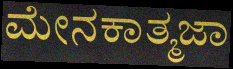
ಮೇನಕಾತ್ಮಜಾ